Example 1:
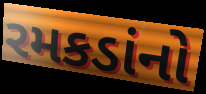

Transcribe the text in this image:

રમકડાંનો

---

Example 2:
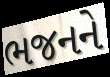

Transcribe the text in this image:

ભજનને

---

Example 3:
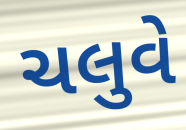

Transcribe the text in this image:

ચલુવે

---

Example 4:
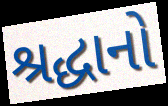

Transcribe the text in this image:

શ્રદ્ધાનો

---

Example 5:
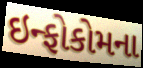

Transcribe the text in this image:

ઇન્ફોકોમના